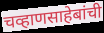
चव्हाणसाहेबांची